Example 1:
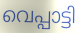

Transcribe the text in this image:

വെപ്പാട്ടി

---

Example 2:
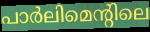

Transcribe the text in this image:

പാർലിമെന്റിലെ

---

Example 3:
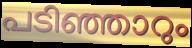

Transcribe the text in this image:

പടിഞ്ഞാറും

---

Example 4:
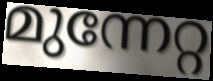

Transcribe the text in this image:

മുന്നേറ്റ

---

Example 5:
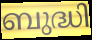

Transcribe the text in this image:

ബുദ്ധി